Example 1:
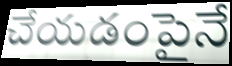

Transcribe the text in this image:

చేయడంపైనే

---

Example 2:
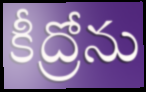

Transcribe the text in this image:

కీద్రోను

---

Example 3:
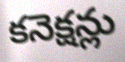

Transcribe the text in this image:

కనెక్షన్లు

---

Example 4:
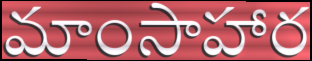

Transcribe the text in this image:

మాంసాహార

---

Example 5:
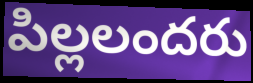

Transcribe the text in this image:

పిల్లలందరు